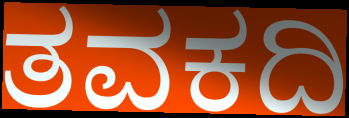
ತವಕದಿ